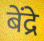
बेंद्रे